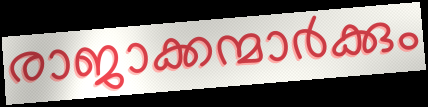
രാജാക്കന്മാർക്കും